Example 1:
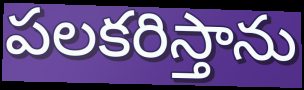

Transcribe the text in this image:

పలకరిస్తాను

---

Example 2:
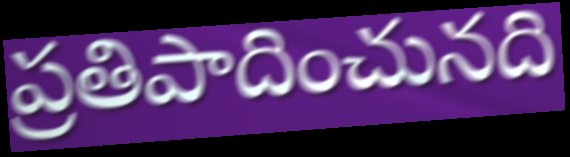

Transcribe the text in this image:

ప్రతిపాదించునది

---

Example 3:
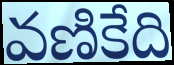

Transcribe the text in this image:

వణికేది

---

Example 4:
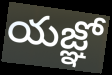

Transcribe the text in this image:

యజ్ఞో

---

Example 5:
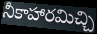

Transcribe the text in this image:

నీకాహారమిచ్చి